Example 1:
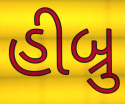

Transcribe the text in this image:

હીબ્રુ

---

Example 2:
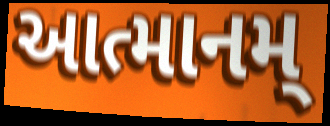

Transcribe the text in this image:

આત્માનમ્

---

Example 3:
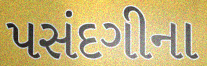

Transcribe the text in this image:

પસંદગીના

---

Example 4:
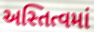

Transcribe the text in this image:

અસ્તિત્વમાં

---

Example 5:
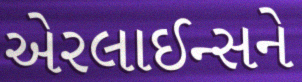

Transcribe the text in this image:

એરલાઈન્સને